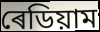
ৰেডিয়াম